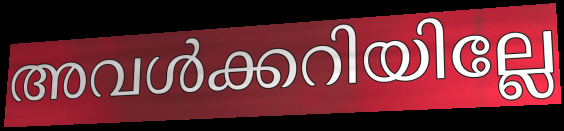
അവൾക്കറിയില്ലേ